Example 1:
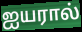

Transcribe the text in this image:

ஐயரால்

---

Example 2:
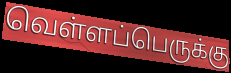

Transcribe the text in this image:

வெள்ளப்பெருக்கு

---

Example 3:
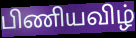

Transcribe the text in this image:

பிணியவிழ்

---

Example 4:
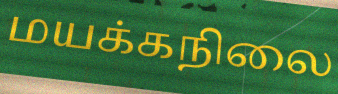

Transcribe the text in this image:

மயக்கநிலை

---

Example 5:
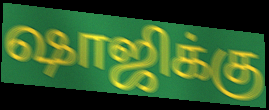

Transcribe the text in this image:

ஷாஜிக்கு